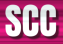
SCC